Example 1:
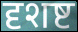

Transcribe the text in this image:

दृशष्ट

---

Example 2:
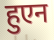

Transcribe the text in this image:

हुएन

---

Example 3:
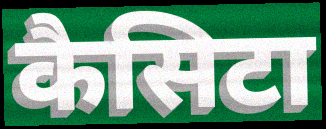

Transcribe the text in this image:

कैसिटा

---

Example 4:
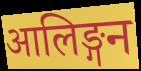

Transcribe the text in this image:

आलिङ्गन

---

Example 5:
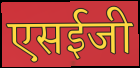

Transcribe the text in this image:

एसईजी